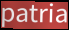
patria